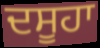
ਦਸੂਹਾ